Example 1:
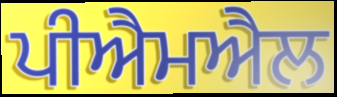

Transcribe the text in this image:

ਪੀਐਮਐਲ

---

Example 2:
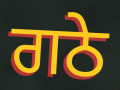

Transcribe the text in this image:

ਗਠੇ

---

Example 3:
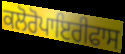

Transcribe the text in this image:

ਕਲੋਰੋਪਾਇਰੀਫਾਸ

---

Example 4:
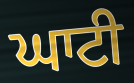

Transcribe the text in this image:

ਘਾਟੀ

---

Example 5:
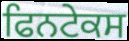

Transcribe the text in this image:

ਫਿਨਟੇਕਸ